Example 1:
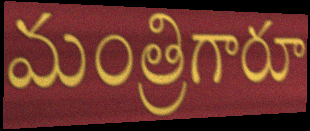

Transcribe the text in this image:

మంత్రిగారూ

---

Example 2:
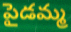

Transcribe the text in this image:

పైడమ్మ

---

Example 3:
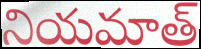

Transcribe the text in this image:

నియమాత్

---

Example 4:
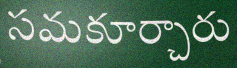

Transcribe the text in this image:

సమకూర్చారు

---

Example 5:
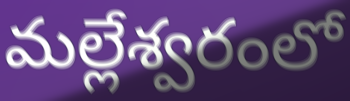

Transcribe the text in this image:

మల్లేశ్వరంలో